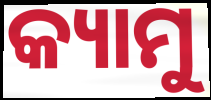
କ୍ୟାମୁ